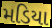
મડિયા